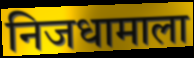
निजधामाला